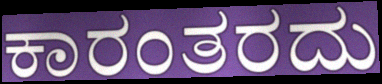
ಕಾರಂತರದು